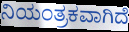
ನಿಯಂತ್ರಕವಾಗಿದೆ